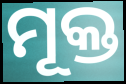
ମୂକ୍ତ